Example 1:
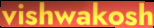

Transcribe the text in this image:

vishwakosh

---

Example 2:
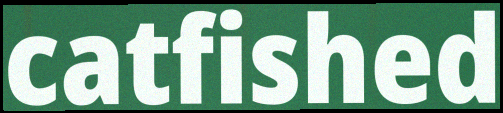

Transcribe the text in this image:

catfished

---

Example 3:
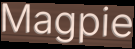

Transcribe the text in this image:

Magpie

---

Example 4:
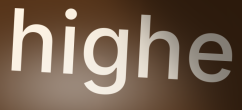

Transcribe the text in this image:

highe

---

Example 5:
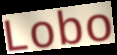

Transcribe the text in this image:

Lobo